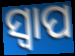
ସ୍ବାପ